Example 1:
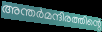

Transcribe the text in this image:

അന്തർമന്ദിരത്തിന്റെ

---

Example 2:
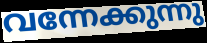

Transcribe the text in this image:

വന്നേക്കുന്നു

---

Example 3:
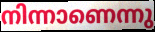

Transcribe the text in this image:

നിന്നാണെന്നു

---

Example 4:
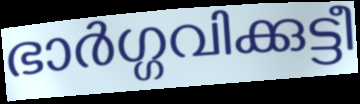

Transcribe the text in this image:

ഭാർഗ്ഗവിക്കുട്ടീ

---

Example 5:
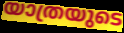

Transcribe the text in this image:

യാത്രയുടെ